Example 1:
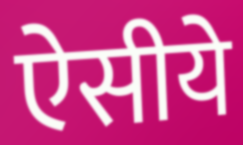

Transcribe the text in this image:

ऐसीये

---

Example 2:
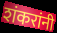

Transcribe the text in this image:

शंकरांनी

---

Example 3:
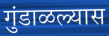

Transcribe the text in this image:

गुंडाळल्यास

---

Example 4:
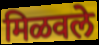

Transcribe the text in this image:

मिळवले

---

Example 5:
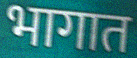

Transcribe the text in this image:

भागात